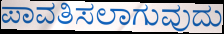
ಪಾವತಿಸಲಾಗುವುದು